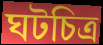
ঘটচিত্র